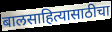
बालसाहित्यासाठीचा